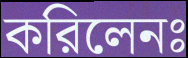
করিলেনঃ